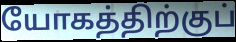
யோகத்திற்குப்